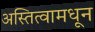
अस्तित्वामधून